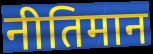
नीतिमान